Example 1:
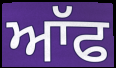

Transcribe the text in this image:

ਆੱਫ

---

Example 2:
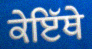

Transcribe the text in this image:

ਕੇਇੱਥੇ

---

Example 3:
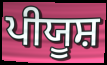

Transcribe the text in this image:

ਪੀਯੂਸ਼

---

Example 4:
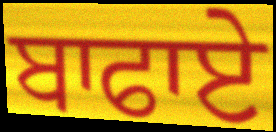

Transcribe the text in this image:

ਬਾਫਾਏ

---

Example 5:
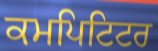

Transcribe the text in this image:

ਕਮਪਿਟਿਟਰ